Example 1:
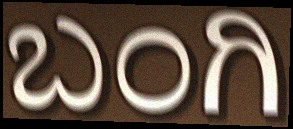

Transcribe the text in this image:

ಬಂಗಿ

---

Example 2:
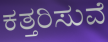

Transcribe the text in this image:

ಕತ್ತರಿಸುವೆ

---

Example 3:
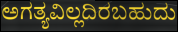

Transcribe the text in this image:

ಅಗತ್ಯವಿಲ್ಲದಿರಬಹುದು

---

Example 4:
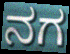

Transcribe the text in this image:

ನಗ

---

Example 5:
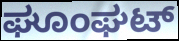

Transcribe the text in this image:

ಘೂಂಘಟ್